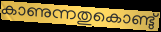
കാണുന്നതുകൊണ്ടു്